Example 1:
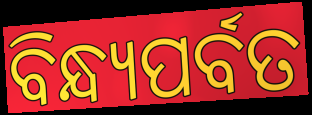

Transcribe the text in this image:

ବିନ୍ଧ୍ୟପର୍ବତ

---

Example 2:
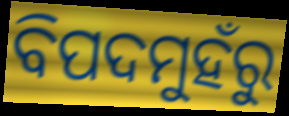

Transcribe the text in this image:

ବିପଦମୁହଁରୁ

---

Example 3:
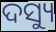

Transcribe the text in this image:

ଦସ୍ୟୁ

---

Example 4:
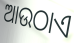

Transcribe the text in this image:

ଆଉଠାଏ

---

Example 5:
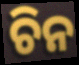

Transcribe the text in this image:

ଚିନ